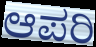
ಆಪರಿ